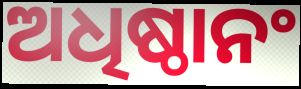
ଅଧିଷ୍ଠାନଂ